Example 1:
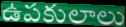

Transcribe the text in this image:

ఉపకులాలు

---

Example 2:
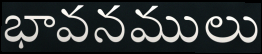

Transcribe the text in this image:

భావనములు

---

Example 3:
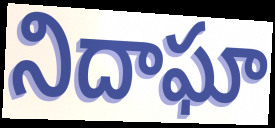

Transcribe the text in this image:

నిదాఘా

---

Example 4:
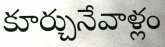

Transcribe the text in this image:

కూర్చునేవాళ్లం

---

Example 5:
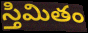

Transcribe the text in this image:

స్తిమితం